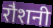
रौशनी